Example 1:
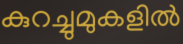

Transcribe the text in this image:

കുറച്ചുമുകളിൽ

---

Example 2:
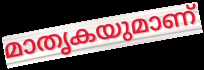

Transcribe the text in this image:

മാതൃകയുമാണ്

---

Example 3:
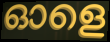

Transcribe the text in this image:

ഓളെ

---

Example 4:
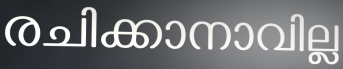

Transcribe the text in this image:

രചിക്കാനാവില്ല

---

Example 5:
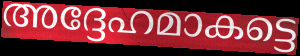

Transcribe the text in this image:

അദ്ദേഹമാകട്ടെ